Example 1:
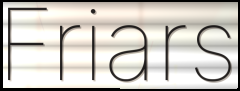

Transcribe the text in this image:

Friars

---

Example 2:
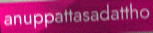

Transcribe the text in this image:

anuppattasadattho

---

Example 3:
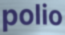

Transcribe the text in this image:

polio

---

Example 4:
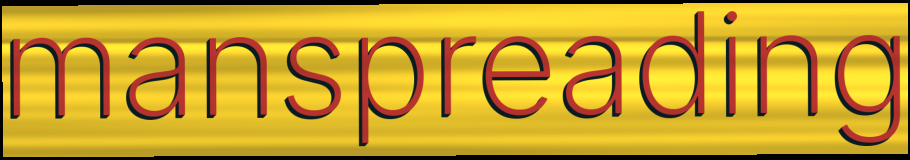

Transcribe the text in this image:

manspreading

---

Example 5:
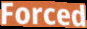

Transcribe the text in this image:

Forced